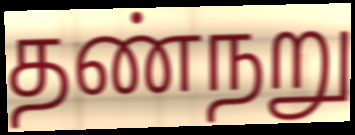
தண்நறு